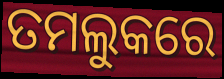
ତମଲୁକରେ